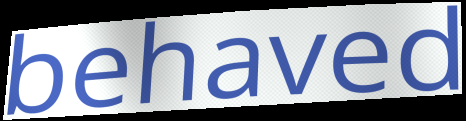
behaved